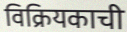
विक्रियकाची